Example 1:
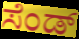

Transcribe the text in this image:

ಸೆಂಡ್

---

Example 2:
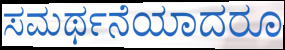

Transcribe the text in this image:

ಸಮರ್ಥನೆಯಾದರೂ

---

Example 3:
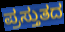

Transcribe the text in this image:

ಪ್ರಸ್ತುತದ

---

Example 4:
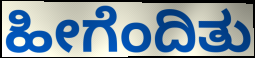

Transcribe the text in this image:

ಹೀಗೆಂದಿತು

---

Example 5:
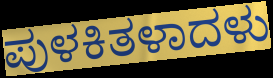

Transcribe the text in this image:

ಪುಳಕಿತಳಾದಳು